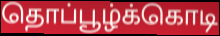
தொப்பூழ்க்கொடி